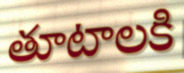
తూటాలకి